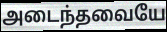
அடைந்தவையே